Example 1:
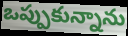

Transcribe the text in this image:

ఒప్పుకున్నాను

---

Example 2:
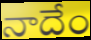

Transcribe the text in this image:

నాదేం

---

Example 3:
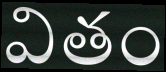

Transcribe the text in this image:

వితం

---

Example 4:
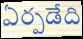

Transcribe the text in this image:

ఏర్పడేది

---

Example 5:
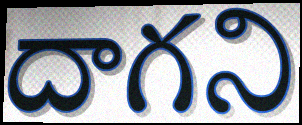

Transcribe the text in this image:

దాగని